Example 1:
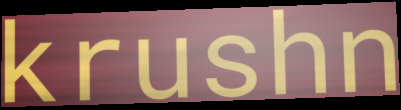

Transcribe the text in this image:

krushn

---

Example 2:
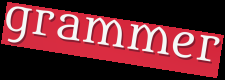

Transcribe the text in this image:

grammer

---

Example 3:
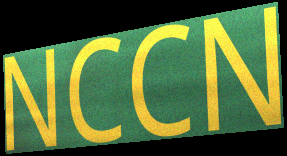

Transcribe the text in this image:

NCCN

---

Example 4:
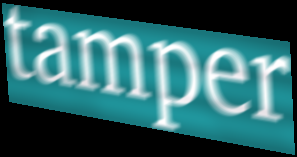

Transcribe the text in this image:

tamper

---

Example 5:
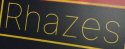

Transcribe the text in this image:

Rhazes